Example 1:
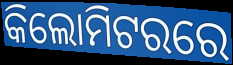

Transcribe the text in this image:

କିଲୋମିଟରରେ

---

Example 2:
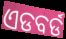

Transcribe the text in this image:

ଏଡବର୍ଡ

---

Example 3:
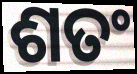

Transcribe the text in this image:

ଶତଂ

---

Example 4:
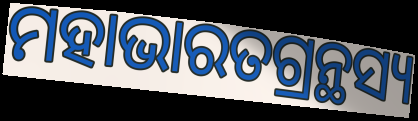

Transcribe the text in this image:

ମହାଭାରତଗ୍ରନ୍ଥସ୍ୟ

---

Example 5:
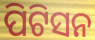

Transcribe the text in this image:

ପିଟିସନ